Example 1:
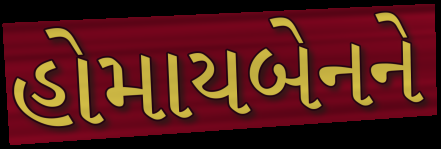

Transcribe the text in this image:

હોમાયબેનને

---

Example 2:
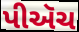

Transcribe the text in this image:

પીઍચ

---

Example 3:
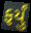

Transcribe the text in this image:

ફર્યું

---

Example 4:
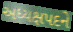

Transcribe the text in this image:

અધ્યક્ષપદને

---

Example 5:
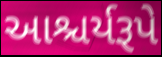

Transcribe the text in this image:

આશ્ચર્યરૂપે